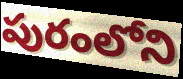
పురంలోని